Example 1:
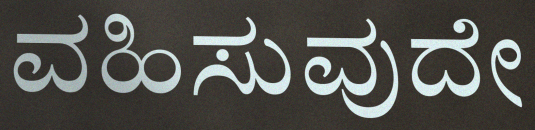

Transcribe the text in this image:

ವಹಿಸುವುದೇ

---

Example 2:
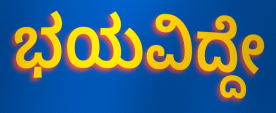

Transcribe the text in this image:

ಭಯವಿದ್ದೇ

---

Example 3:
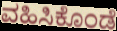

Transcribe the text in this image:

ವಹಿಸಿಕೊಂಡೆ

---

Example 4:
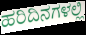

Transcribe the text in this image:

ಹರಿದಿನಗಳಲ್ಲಿ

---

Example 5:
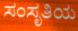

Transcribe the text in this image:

ಸಂಸೃತಿಯ